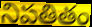
నిపతితం